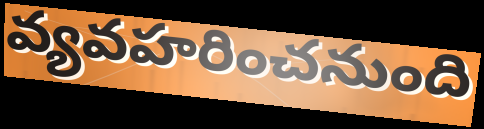
వ్యవహరించనుంది